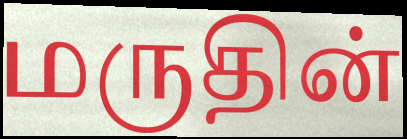
மருதின்